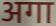
अगा